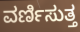
ವರ್ಣಿಸುತ್ತ